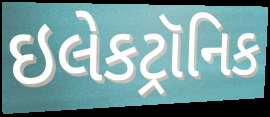
ઇલેકટ્રૉનિક